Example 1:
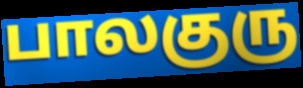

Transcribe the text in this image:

பாலகுரு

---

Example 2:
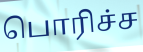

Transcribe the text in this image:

பொரிச்ச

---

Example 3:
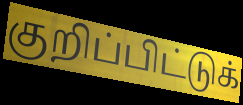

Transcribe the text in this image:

குறிப்பிட்டுக்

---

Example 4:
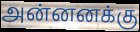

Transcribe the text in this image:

அன்னனக்கு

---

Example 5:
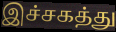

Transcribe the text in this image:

இச்சகத்து